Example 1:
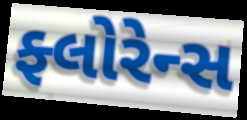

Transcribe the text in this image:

ફ્લોરેન્સ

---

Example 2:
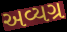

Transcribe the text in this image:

અવ્યગ્ર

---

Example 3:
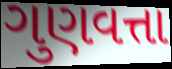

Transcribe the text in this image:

ગુણવત્તા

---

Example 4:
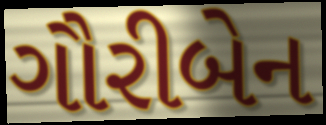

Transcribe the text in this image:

ગૌરીબેન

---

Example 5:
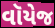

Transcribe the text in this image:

વૉયેજ